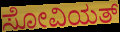
ಸೋವಿಯತ್